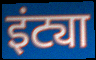
इंट्या